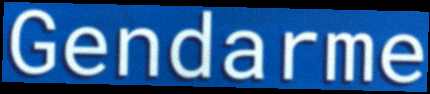
Gendarme